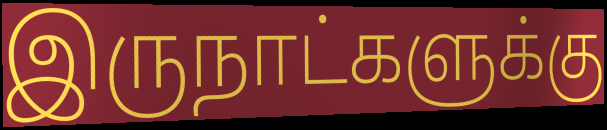
இருநாட்களுக்கு